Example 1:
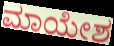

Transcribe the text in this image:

ಮಾಯೇಶ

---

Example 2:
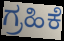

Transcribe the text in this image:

ಗ್ರಹಿಕೆ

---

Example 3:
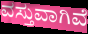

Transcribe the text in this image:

ವಸ್ತುವಾಗಿವೆ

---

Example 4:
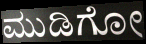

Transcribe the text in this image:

ಮುಡಿಗೋ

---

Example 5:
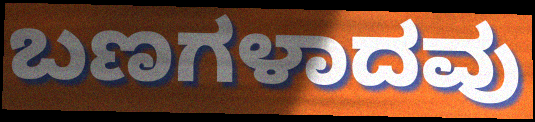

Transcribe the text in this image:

ಬಣಗಳಾದವು